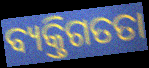
ବ୍ୟକ୍ତିଗତତା